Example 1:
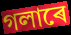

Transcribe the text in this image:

গলাৰে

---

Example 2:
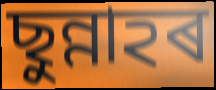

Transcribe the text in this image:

ছুন্নাহৰ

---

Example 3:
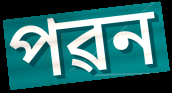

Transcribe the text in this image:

পৱন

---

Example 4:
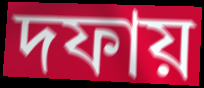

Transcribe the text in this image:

দফায়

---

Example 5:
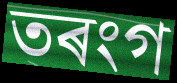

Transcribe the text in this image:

তৰংগ